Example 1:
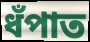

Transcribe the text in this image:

ধঁপাত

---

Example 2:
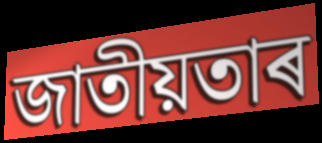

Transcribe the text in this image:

জাতীয়তাৰ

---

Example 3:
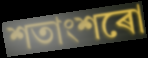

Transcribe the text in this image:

শতাংশৰো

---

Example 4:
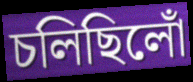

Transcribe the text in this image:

চলিছিলোঁ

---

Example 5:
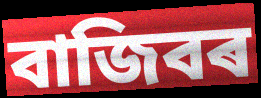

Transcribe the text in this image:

বাজিবৰ